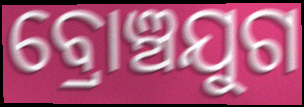
ବ୍ରୋଞ୍ଚଯୁଗ